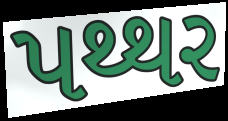
પથ્થર